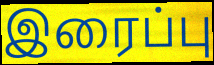
இரைப்பு